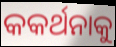
କକର୍ଥନାକୁ